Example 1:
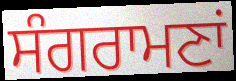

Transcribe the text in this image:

ਸੰਗਰਾਮਣਾਂ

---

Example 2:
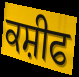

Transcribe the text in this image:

ਕਸ਼ੀਫ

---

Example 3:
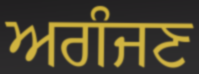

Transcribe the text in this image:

ਅਗੰਜਣ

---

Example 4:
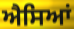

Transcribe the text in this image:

ਐਸਿਆਂ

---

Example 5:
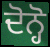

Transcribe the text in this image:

ਦੋਨ੍ਹੋ